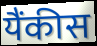
यैंकीस